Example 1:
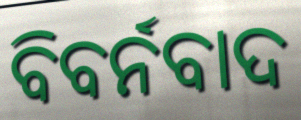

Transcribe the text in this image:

ବିବର୍ନବାଦ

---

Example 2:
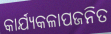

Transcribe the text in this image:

କାର୍ଯ୍ୟକଳାପଜନିତ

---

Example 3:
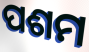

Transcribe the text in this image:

ପଶମ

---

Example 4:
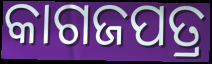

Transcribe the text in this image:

କାଗଜପତ୍ର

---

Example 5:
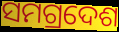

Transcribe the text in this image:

ସମଗ୍ରଦେଶ